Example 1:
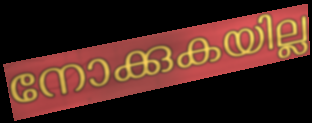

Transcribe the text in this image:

നോക്കുകയില്ല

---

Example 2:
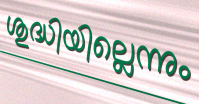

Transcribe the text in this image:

ശുദ്ധിയില്ലെന്നും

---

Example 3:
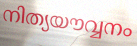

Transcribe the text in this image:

നിത്യയൗവ്വനം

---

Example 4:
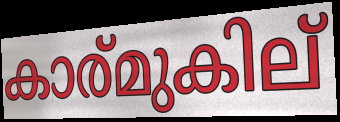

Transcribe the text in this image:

കാര്മുകില്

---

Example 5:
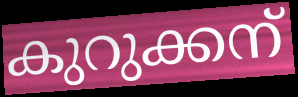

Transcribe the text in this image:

കുറുക്കന്